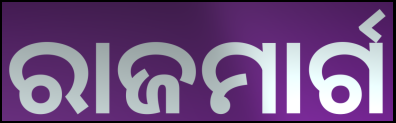
ରାଜମାର୍ଗ